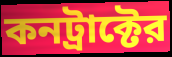
কনট্রাক্টের